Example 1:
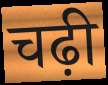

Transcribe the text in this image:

चढ़ी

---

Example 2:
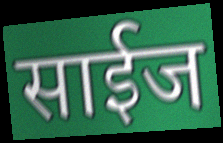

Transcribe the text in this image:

साईज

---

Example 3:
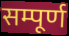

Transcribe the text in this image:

सम्पूर्ण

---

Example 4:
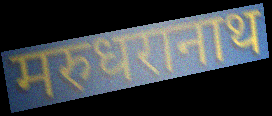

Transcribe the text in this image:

मरुधरानाथ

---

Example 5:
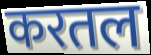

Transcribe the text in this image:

करतल